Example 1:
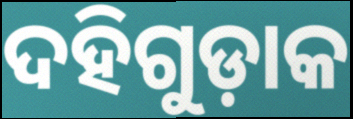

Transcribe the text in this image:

ଦହିଗୁଡ଼ାକ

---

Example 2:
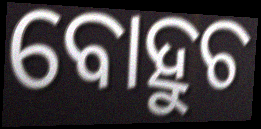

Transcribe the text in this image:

ବୋହୁଚ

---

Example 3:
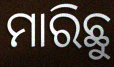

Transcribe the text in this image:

ମାରିଛୁ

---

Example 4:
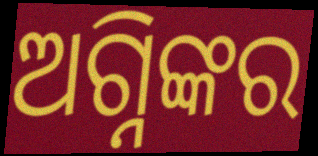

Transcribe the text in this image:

ଅଗ୍ନିଙ୍କର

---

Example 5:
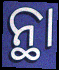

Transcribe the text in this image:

ନ୍ଥା